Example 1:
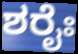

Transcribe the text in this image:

ಶರೈಃ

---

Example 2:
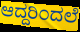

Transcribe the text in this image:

ಆದ್ದರಿಂದಲೆ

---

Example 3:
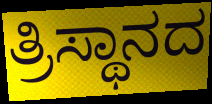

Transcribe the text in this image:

ತ್ರಿಸ್ಥಾನದ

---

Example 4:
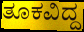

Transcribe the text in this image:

ತೂಕವಿದ್ದ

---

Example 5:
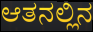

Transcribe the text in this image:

ಆತನಲ್ಲಿನ